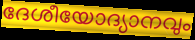
ദേശീയോദ്യാനവും